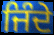
ਜਿੰਦੇ